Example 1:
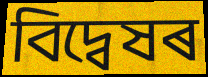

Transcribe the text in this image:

বিদ্বেষৰ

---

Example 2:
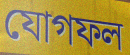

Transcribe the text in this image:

যোগফল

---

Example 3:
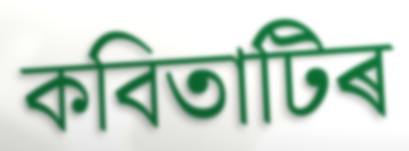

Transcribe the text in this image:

কবিতাটিৰ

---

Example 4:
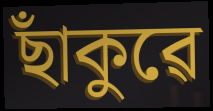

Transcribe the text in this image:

ছাঁকুৱে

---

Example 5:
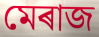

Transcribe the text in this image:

মেৰাজ